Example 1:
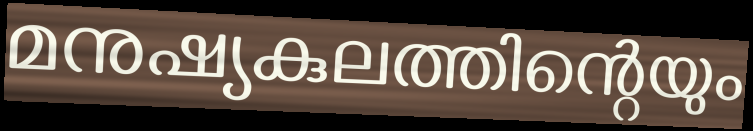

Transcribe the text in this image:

മനുഷ്യകുലത്തിന്റെയും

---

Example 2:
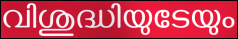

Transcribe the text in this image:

വിശുദ്ധിയുടേയും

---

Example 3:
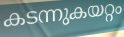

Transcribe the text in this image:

കടന്നുകയറ്റം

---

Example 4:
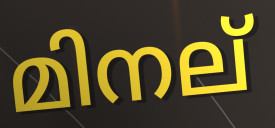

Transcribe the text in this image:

മിനല്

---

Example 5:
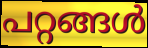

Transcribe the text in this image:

പറ്റങ്ങൾ